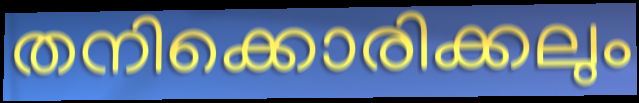
തനിക്കൊരിക്കലും